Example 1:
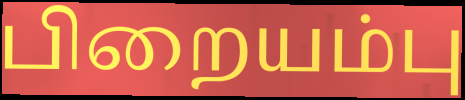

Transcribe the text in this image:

பிறையம்பு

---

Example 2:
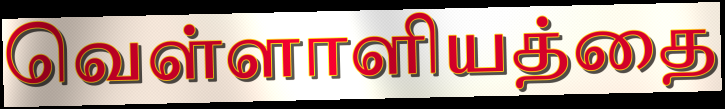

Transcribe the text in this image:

வெள்ளாளியத்தை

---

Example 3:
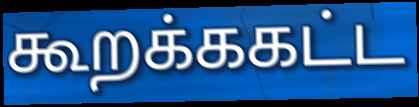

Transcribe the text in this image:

கூறக்ககட்ட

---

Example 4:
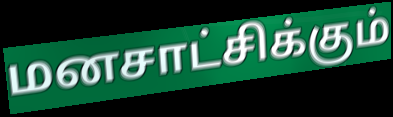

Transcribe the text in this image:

மனசாட்சிக்கும்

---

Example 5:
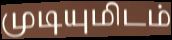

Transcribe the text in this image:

முடியுமிடம்